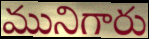
మునిగారు